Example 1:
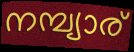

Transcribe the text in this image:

നമ്പ്യാര്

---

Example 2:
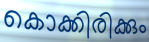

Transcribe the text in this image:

കൊക്കിരിക്കും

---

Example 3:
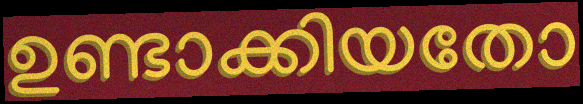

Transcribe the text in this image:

ഉണ്ടാക്കിയതോ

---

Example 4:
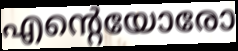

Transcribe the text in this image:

എന്റെയോരോ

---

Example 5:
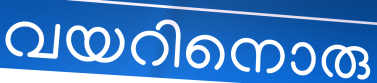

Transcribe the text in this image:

വയറിനൊരു